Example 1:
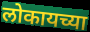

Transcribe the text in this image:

लोकायच्या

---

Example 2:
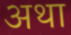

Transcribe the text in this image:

अथा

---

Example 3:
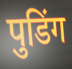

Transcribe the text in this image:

पुडिंग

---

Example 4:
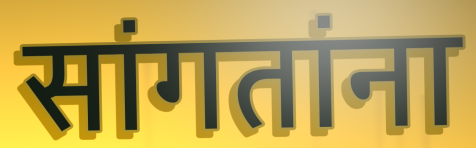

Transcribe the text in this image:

सांगतांना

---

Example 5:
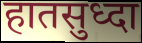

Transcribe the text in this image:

हातसुध्दा